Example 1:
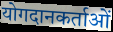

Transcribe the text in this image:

योगदानकर्ताओं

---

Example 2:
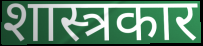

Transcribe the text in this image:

शास्त्रकार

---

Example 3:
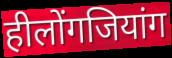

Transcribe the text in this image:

हीलोंगजियांग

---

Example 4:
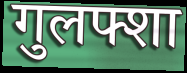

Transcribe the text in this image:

गुलफ्शा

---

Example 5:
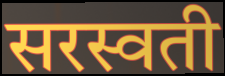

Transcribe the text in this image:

सरस्वती